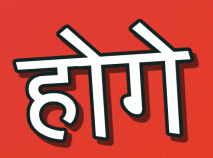
होगे